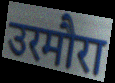
उरमौरा